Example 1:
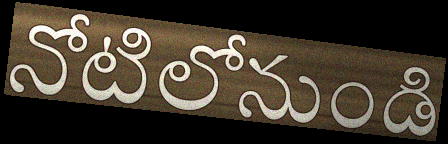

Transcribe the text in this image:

నోటిలోనుండి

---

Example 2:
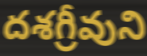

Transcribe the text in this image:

దశగ్రీవుని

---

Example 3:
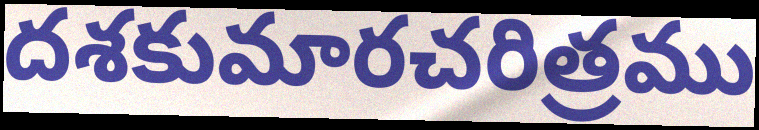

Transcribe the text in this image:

దశకుమారచరిత్రము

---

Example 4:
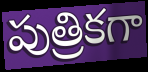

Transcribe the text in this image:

పుత్రికగా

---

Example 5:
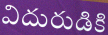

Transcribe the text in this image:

విదురుడికి